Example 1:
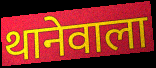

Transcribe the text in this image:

थानेवाला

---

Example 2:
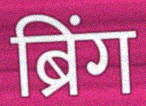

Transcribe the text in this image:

ब्रिंग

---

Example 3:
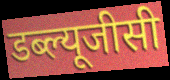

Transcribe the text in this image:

डब्ल्यूजीसी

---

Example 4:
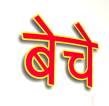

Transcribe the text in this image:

बेचे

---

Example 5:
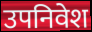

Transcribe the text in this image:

उपनिवेश